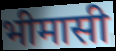
भीमासी